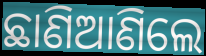
ଛାଣିଆଣିଲେ